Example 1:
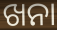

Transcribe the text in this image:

ଖନା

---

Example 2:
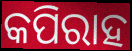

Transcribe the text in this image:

କପିରାହ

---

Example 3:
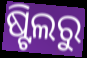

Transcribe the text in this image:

ଷ୍ଟିଲରୁ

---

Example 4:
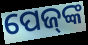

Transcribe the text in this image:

ପେଜ୍‌ଙ୍କ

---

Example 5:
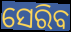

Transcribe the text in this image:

ସେରିବ